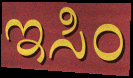
ಇಸಿಂ